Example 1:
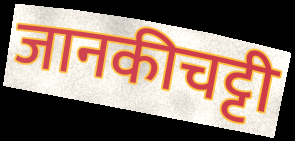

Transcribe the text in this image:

जानकीचट्टी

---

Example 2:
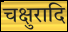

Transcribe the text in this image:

चक्षुरादि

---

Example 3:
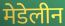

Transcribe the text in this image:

मेडेलीन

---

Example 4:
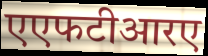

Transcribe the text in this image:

एएफटीआरए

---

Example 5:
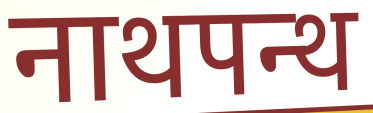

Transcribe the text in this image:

नाथपन्थ